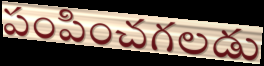
పంపించగలడు